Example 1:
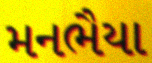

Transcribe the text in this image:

મનભૈયા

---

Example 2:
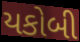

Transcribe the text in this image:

યકોબી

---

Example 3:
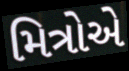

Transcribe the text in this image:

મિત્રોએ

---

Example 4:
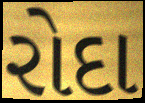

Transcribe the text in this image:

રોદા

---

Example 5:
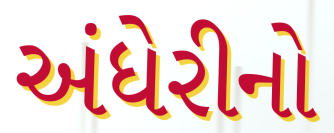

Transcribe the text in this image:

અંધેરીનો